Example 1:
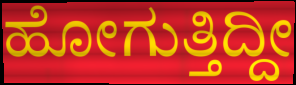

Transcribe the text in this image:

ಹೋಗುತ್ತಿದ್ದೀ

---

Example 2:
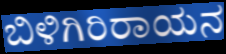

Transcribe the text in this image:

ಬಿಳಿಗಿರಿರಾಯನ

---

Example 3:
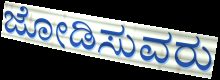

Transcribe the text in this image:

ಜೋಡಿಸುವರು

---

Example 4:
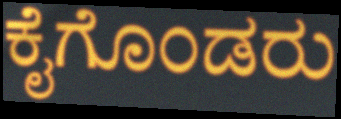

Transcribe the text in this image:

ಕೈಗೊಂಡರು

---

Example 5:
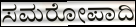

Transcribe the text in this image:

ಸಮರೋಪಾದಿ